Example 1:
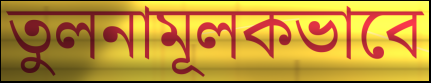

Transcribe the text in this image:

তুলনামূলকভাবে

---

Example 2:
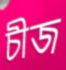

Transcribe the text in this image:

চীজ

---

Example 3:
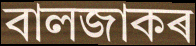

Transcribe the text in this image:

বালজাকৰ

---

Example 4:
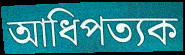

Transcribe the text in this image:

আধিপত্যক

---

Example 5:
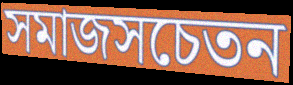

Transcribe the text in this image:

সমাজসচেতন